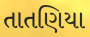
તાતણિયા